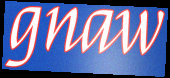
gnaw